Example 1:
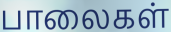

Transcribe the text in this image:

பாலைகள்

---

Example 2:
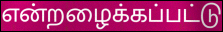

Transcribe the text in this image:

என்றழைக்கப்பட்டு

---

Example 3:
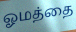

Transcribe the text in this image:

ஓமத்தை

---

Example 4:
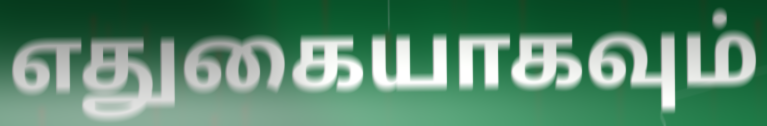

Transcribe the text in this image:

எதுகையாகவும்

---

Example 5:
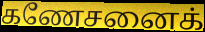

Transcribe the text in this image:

கணேசனைக்